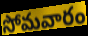
సోమవారం